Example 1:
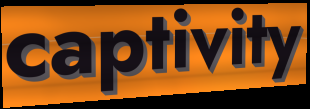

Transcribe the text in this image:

captivity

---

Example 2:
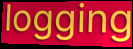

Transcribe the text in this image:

logging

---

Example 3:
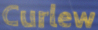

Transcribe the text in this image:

Curlew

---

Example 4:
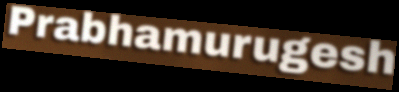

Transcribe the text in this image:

Prabhamurugesh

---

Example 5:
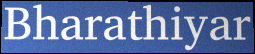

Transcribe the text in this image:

Bharathiyar